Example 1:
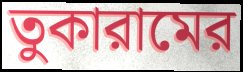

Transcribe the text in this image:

তুকারামের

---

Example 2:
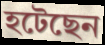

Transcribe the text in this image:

হটেছেন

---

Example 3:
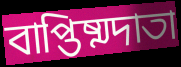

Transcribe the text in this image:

বাপ্তিষ্মদাতা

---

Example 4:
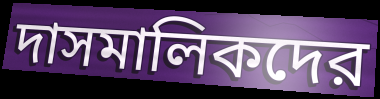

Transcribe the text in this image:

দাসমালিকদের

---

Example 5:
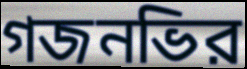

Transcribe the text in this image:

গজনভির